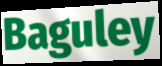
Baguley